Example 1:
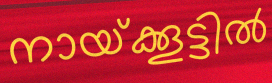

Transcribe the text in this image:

നായ്‌ക്കൂട്ടിൽ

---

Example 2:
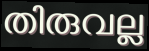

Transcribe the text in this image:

തിരുവല്ല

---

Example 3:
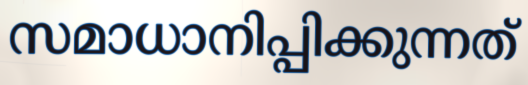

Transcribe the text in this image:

സമാധാനിപ്പിക്കുന്നത്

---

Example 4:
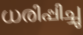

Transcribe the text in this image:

ധരിപ്പിച്ചു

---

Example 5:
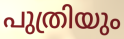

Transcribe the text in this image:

പുത്രിയും